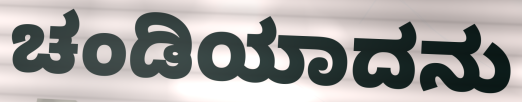
ಚಂಡಿಯಾದನು